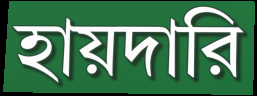
হায়দারি